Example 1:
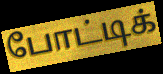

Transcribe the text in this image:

போட்டிக்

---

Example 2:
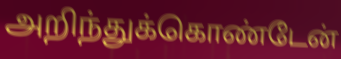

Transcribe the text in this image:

அறிந்துக்கொண்டேன்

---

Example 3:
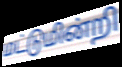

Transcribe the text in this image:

மட்டுமின்றி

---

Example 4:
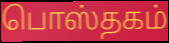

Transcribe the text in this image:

பொஸ்தகம்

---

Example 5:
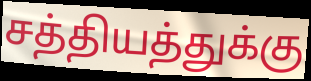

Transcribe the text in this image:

சத்தியத்துக்கு